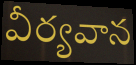
వీర్యవాన